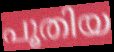
പൂതിയ